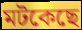
মটকেছে